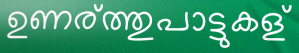
ഉണര്ത്തുപാട്ടുകള്